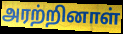
அரற்றினாள்